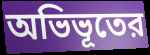
অভিভূতের